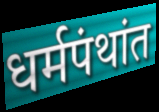
धर्मपंथांत